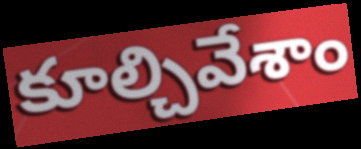
కూల్చివేశాం